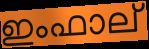
ഇംഫാല്